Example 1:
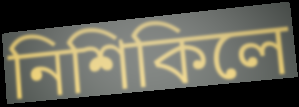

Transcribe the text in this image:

নিশিকিলে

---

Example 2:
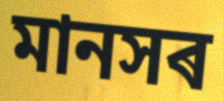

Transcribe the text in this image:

মানসৰ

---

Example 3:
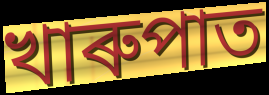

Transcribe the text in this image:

খাৰুপাত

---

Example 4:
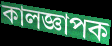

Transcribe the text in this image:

কালজ্ঞাপক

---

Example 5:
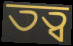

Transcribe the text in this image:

তত্ব